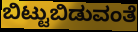
ಬಿಟ್ಟುಬಿಡುವಂತೆ